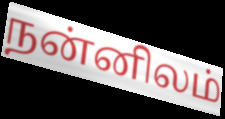
நன்னிலம்